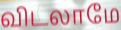
விடலாமே